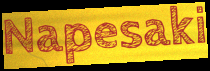
Napesaki